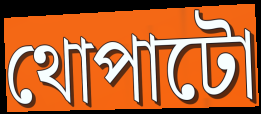
থোপাটো